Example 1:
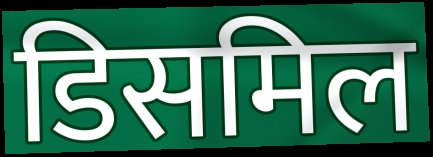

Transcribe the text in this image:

डिसमिल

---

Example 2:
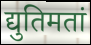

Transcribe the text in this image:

द्युतिमतां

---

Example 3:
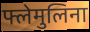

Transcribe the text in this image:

फ्लेमुलिना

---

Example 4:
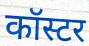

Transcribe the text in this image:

कॉस्टर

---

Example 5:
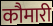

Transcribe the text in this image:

कौमारी